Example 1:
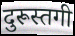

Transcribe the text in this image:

दुरूस्तगी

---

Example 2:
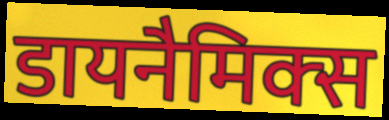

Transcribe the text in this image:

डायनैमिक्‍स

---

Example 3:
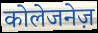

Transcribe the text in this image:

कोलेजनेज़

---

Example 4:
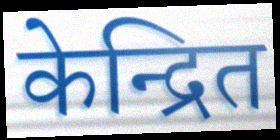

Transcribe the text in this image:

केन्द्रित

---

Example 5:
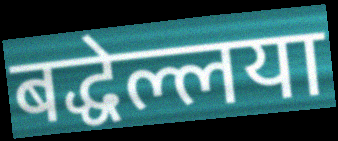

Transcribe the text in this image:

बद्धेल्लया